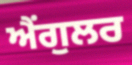
ਐਂਗੁਲਰ